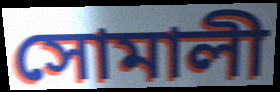
সোমালী